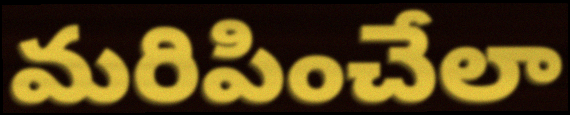
మరిపించేలా